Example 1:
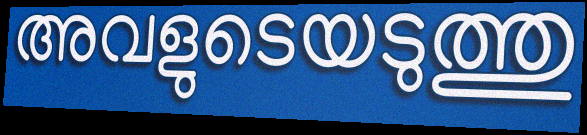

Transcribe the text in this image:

അവളുടെയടുത്തു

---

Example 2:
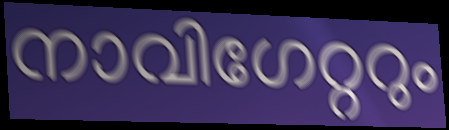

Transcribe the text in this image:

നാവിഗേറ്ററും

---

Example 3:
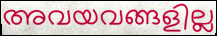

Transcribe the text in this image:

അവയവങ്ങളില്ല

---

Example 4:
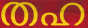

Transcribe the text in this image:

തഹ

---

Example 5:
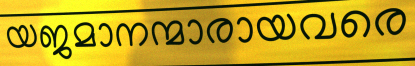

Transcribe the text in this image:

യജമാനന്മാരായവരെ